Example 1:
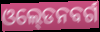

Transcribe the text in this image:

ଓଲ୍‍ଡେନବର୍ଗ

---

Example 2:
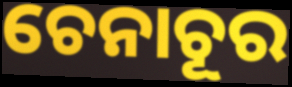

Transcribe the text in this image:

ଚେନାଚୂର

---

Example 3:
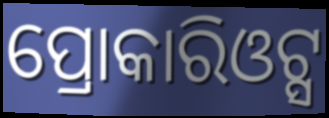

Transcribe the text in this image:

ପ୍ରୋକାରିଓଟ୍ସ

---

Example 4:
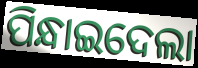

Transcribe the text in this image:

ପିନ୍ଧାଇଦେଲା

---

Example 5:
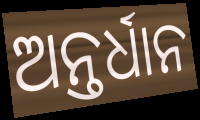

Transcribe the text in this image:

ଅନ୍ତର୍ଧାନ